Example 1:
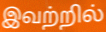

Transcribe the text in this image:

இவற்றில்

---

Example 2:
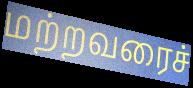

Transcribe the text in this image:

மற்றவரைச்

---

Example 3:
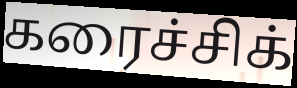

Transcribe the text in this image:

கரைச்சிக்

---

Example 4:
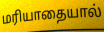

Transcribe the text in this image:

மரியாதையால்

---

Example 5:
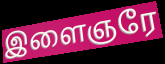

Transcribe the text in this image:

இளைஞரே